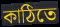
কাঠিতে